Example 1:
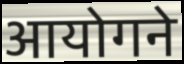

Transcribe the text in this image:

आयोगने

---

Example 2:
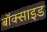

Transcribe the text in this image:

बॉक्साइड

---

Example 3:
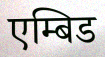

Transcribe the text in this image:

एम्बिड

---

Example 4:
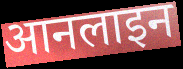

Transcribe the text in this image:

आनलाइन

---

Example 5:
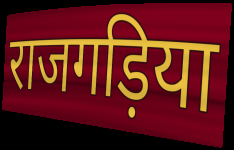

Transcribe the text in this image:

राजगड़िया